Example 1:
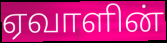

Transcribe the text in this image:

ஏவாளின்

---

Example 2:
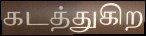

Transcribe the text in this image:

கடத்துகிற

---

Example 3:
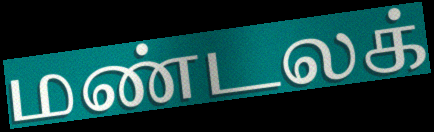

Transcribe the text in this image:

மண்டலக்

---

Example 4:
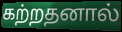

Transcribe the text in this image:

கற்றதனால்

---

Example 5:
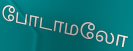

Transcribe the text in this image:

போடாமலோ